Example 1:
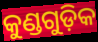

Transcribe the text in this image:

କୁଣ୍ଡଗୁଡ଼ିକ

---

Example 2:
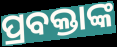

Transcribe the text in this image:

ପ୍ରବକ୍ତାଙ୍କ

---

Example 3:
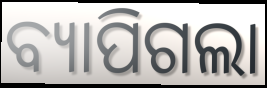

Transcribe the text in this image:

ବ୍ୟାପିଗଲା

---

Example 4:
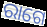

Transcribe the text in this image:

ରାଗେ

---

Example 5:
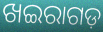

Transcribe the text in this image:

ଖଇରାଗଡ଼